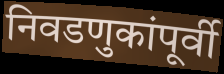
निवडणुकांपूर्वी